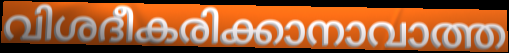
വിശദീകരിക്കാനാവാത്ത